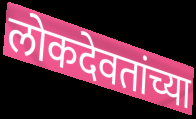
लोकदेवतांच्या